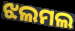
ଝଲମଲ